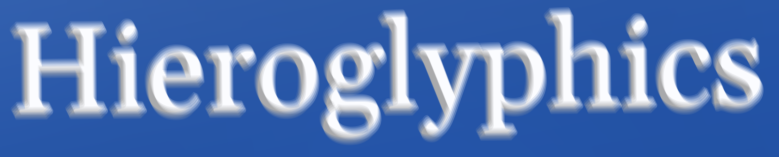
Hieroglyphics